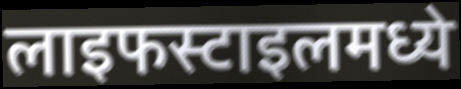
लाइफस्टाइलमध्ये